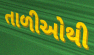
તાળીઓથી